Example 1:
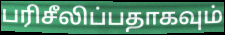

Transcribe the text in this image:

பரிசீலிப்பதாகவும்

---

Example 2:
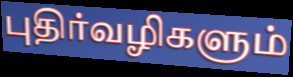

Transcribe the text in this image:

புதிர்வழிகளும்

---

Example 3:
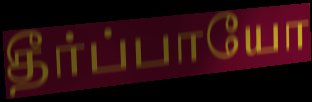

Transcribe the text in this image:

தீர்ப்பாயோ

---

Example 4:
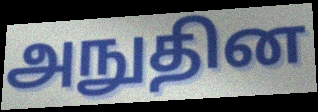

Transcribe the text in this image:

அநுதின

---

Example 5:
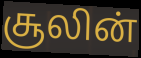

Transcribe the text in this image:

சூலின்